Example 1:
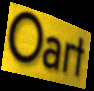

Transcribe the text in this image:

Oart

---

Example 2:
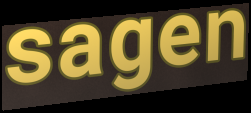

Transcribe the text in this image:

sagen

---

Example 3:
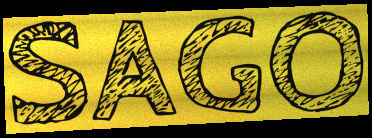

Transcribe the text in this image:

SAGO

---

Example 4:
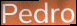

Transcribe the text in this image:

Pedro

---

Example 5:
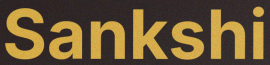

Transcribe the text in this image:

Sankshi